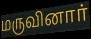
மருவினார்